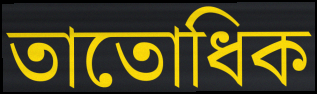
তাতোধিক